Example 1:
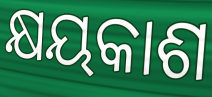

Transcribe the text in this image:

କ୍ଷୟକାଶ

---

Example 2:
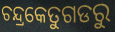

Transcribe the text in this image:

ଚନ୍ଦ୍ରକେତୁଗଡରୁ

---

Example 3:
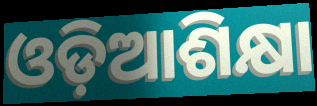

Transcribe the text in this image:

ଓଡ଼ିଆଶିକ୍ଷା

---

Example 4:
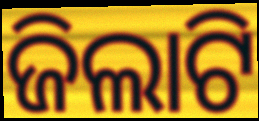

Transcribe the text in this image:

ଜିଲାଟି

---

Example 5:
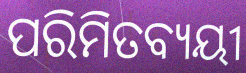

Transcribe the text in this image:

ପରିମିତବ୍ୟୟୀ